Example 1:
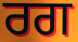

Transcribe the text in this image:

ਰਗ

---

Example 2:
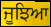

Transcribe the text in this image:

ਜੂਝਿਆ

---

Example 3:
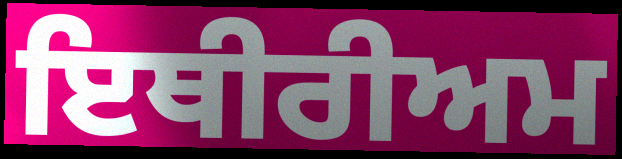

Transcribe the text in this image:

ਇਥੀਰੀਅਮ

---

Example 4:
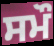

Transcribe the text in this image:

ਸਮੌ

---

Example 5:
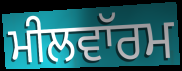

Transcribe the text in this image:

ਮੀਲਵਾੱਰਮ